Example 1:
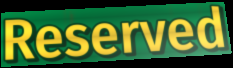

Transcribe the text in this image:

Reserved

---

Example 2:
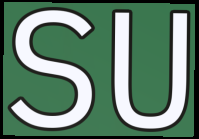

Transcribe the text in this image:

SU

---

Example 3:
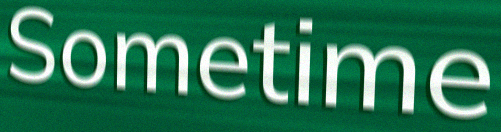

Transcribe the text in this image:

Sometime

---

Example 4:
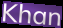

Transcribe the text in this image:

Khan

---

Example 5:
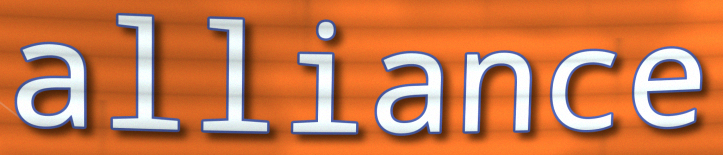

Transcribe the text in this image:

alliance